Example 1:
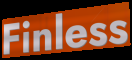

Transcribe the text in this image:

Finless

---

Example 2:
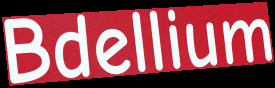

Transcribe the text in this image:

Bdellium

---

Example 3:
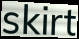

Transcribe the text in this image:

skirt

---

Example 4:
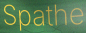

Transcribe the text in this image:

Spathe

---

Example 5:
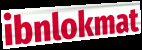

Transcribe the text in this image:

ibnlokmat